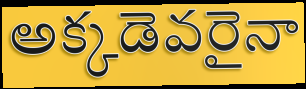
అక్కడెవరైనా